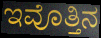
ಇವೊತ್ತಿನ